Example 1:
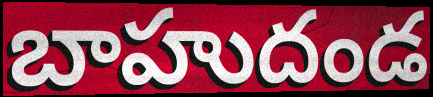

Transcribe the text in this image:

బాహుదండ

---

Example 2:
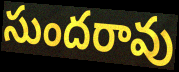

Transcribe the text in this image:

సుందరావు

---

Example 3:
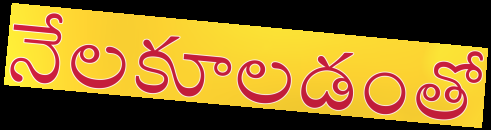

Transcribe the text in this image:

నేలకూలడంతో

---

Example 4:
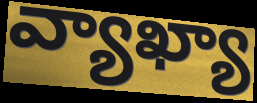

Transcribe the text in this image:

వ్యాఖ్యా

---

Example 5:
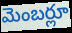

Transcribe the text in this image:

మెంబర్లూ